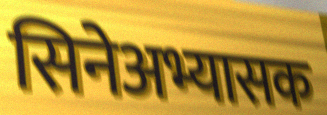
सिनेअभ्यासक